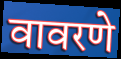
वावरणे